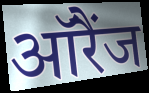
ऑरैंज